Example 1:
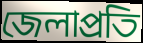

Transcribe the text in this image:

জেলাপ্রতি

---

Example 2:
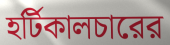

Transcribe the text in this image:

হর্টিকালচারের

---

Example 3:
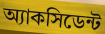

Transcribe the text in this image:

অ্যাকসিডেন্ট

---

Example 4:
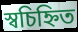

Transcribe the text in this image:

স্বচিহ্নিত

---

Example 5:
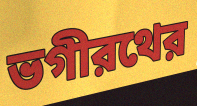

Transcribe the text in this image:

ভগীরথের